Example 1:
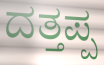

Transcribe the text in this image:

ದತ್ತಪ್ಪ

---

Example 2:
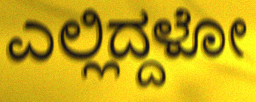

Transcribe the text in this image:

ಎಲ್ಲಿದ್ದಳೋ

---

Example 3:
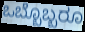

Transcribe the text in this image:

ಒಬ್ಬೊಬ್ಬರೂ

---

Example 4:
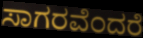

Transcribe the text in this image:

ಸಾಗರವೆಂದರೆ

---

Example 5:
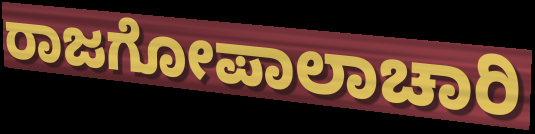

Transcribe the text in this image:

ರಾಜಗೋಪಾಲಾಚಾರಿ